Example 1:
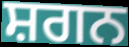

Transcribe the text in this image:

ਸ਼ਗਨ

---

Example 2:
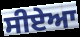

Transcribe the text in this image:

ਸੀਏਆ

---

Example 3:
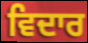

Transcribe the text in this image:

ਵਿਦਾਰ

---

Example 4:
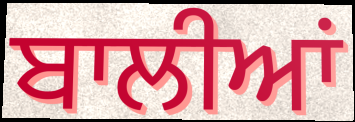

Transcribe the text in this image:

ਬਾਲੀਆਂ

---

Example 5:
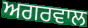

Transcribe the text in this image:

ਅਗਰਵਾਲ